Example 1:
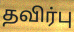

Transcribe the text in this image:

தவிர்பு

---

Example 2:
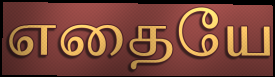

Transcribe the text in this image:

எதையே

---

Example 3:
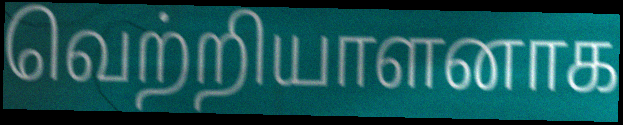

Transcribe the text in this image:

வெற்றியாளனாக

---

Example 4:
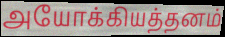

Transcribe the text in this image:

அயோக்கியத்தனம்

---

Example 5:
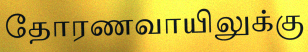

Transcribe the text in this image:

தோரணவாயிலுக்கு